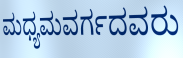
ಮಧ್ಯಮವರ್ಗದವರು